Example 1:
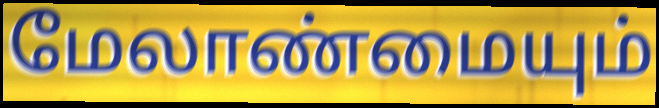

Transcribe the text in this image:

மேலாண்மையும்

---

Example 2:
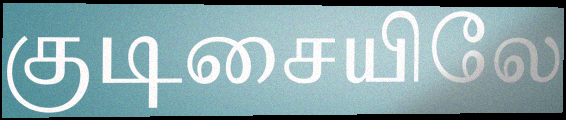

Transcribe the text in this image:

குடிசையிலே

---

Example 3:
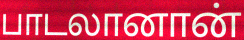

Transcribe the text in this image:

பாடலானான்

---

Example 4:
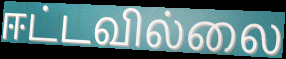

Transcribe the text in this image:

ஈட்டவில்லை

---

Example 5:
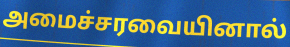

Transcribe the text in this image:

அமைச்சரவையினால்